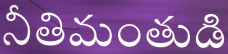
నీతిమంతుడి